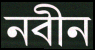
নবীন